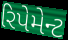
રિપેમેન્ટ